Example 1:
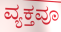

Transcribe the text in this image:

ವ್ಯಕ್ತವೂ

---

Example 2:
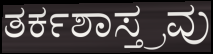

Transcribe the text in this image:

ತರ್ಕಶಾಸ್ತ್ರವು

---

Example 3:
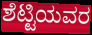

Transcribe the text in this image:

ಶೆಟ್ಟಿಯವರ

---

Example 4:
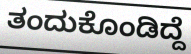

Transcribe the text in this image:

ತಂದುಕೊಂಡಿದ್ದೆ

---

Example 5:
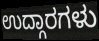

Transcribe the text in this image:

ಉದ್ಗಾರಗಳು